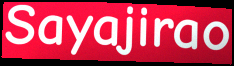
Sayajirao